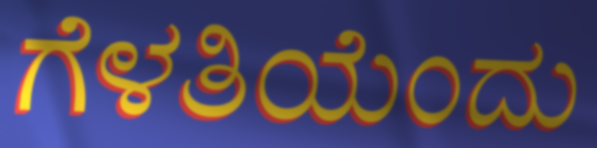
ಗೆಳತಿಯೆಂದು